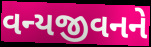
વન્યજીવનને